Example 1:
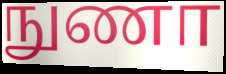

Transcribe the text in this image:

நுணா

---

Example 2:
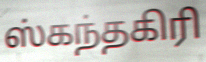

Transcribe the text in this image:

ஸ்கந்தகிரி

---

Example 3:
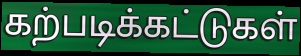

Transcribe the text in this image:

கற்படிக்கட்டுகள்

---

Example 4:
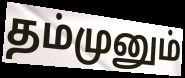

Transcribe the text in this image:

தம்முனும்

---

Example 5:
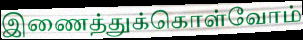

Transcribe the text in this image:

இணைத்துக்கொள்வோம்